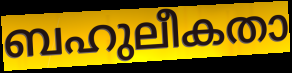
ബഹുലീകതാ